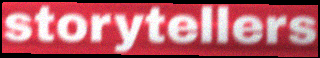
storytellers